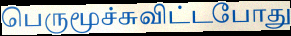
பெருமூச்சுவிட்டபோது